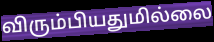
விரும்பியதுமில்லை